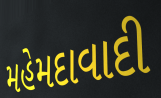
મહેમદાવાદી